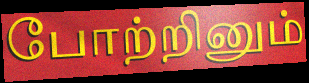
போற்றினும்